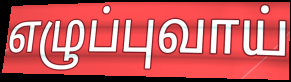
எழுப்புவாய்